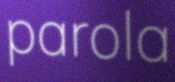
parola